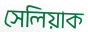
সেলিয়াক